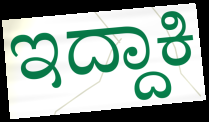
ಇದ್ದಾಕಿ